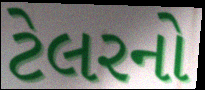
ટેલરનો